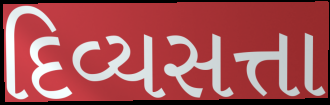
દિવ્યસત્તા